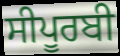
ਸੀਪੂਰਬੀ